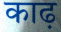
काढ़